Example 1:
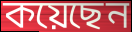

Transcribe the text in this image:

কয়েছেন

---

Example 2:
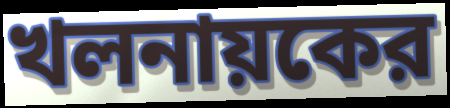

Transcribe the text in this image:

খলনায়কের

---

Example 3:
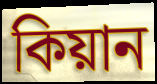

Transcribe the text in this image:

কিয়ান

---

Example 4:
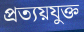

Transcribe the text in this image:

প্রত্যয়যুক্ত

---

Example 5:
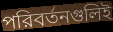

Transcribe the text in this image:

পরিবর্তনগুলিই